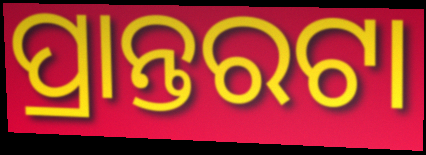
ପ୍ରାନ୍ତରଟା